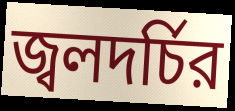
জ্বলদর্চির